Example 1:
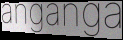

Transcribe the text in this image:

anganga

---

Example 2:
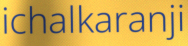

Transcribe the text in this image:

ichalkaranji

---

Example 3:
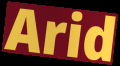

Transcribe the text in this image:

Arid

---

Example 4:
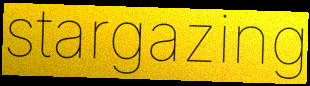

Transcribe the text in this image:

stargazing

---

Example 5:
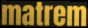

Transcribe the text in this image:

matrem